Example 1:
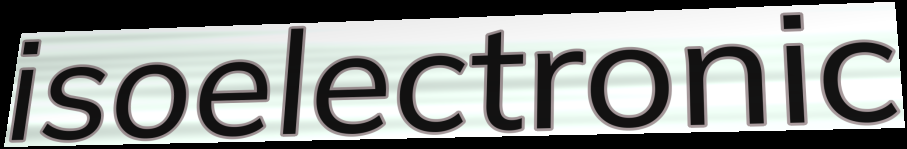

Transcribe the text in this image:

isoelectronic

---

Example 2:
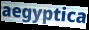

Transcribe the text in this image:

aegyptica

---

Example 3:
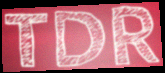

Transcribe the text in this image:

TDR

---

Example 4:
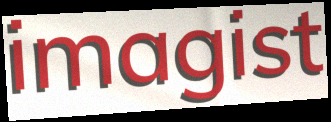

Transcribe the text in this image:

imagist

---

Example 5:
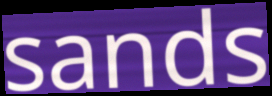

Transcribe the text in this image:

sands